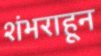
शंभराहून